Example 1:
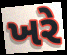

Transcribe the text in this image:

ખરે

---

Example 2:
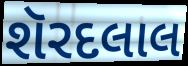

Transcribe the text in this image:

શૅરદલાલ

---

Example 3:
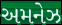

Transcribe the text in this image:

અમનેઝ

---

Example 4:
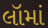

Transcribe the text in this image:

લૉમાં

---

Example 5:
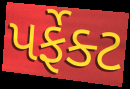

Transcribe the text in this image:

પર્ફેક્ટ